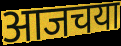
आजचया